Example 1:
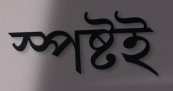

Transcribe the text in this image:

স্পষ্টই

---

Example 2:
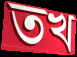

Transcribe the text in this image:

তখ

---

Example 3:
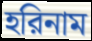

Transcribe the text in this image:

হরিনাম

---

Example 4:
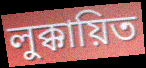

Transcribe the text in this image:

লুক্কায়িত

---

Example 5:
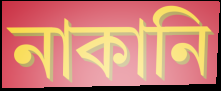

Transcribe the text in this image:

নাকানি